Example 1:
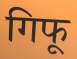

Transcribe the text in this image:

गिफू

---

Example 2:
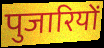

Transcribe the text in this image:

पुजारियों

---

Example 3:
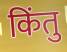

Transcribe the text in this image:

किंतु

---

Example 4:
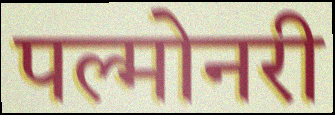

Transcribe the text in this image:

पल्मोनरी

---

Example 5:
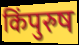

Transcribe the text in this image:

किंपुरुष